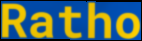
Ratho